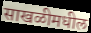
साखळीमधील